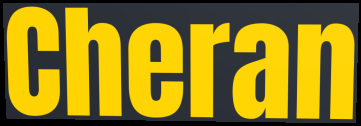
Cheran